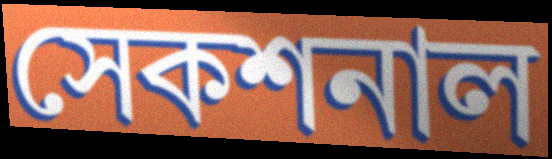
সেকশনাল